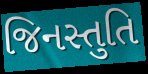
જિનસ્તુતિ